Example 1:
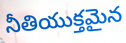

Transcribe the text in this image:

నీతియుక్తమైన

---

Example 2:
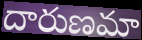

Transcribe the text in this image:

దారుణమా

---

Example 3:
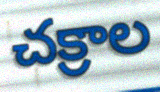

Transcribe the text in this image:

చక్రాల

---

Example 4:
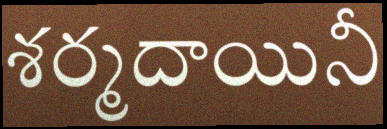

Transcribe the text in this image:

శర్మదాయినీ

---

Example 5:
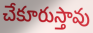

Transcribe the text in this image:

చేకూరుస్తావు